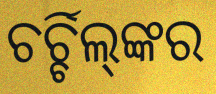
ଚର୍ଚ୍ଚିଲ୍‌ଙ୍କର